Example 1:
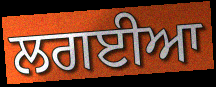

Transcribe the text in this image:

ਲਗਈਆ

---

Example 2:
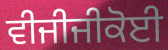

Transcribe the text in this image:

ਵੀਜੀਜੀਕੋਈ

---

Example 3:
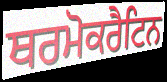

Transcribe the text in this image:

ਥਰਮੋਕਰੈਟਿਨ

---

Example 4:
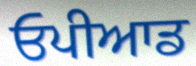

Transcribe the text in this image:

ਓਪੀਆਡ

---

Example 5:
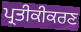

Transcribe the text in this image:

ਪ੍ਰਤੀਕੀਕਰਣ